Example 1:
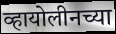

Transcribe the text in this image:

व्हायोलीनच्या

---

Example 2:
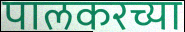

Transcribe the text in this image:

पालकरच्या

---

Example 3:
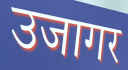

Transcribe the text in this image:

उजागर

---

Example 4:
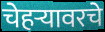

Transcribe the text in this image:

चेहऱ्यावरचे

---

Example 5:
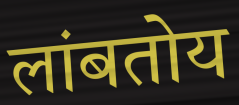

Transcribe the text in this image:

लांबतोय